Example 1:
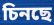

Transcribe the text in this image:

চিনছে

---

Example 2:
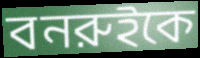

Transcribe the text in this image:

বনরুইকে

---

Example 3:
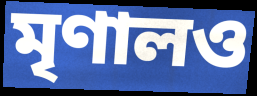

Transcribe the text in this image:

মৃণালও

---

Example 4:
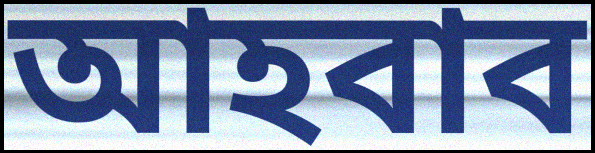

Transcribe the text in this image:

আহবাব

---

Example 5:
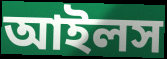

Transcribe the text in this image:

আইলস